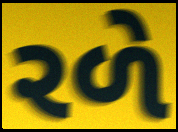
રળે